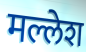
मल्लेश